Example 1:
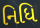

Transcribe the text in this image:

નિધિ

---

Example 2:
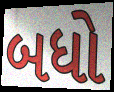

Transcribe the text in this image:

બધો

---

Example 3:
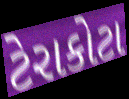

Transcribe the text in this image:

ટેરાકોટા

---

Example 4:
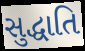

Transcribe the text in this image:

સુદ્ધાતિ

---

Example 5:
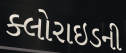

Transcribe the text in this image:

ક્લોરાઇડની